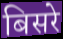
बिसरे